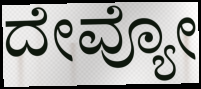
ದೇವ್ಯೋ